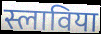
स्लाविया